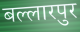
बल्लारपुर